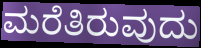
ಮರೆತಿರುವುದು